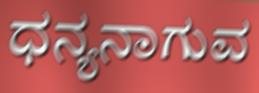
ಧನ್ಯನಾಗುವ